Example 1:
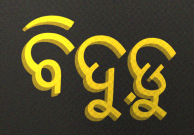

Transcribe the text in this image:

ବିଦୁଡ଼ୁ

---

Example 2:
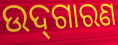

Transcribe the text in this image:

ଉଦ୍‌ଗାରଣ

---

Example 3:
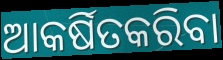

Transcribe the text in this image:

ଆକର୍ଷିତକରିବା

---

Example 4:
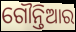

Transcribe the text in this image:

ଗୌନ୍ତିଆର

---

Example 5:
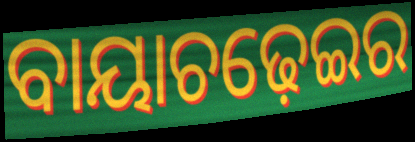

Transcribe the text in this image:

ବାୟାଚଢ଼େଇର